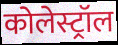
कोलेस्‍ट्रॉल